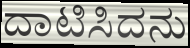
ದಾಟಿಸಿದನು